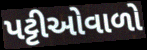
પટ્ટીઓવાળો